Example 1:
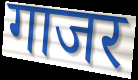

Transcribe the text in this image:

गाजर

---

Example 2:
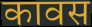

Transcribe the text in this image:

कावस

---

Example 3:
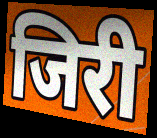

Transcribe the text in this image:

जिरी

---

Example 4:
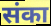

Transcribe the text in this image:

संका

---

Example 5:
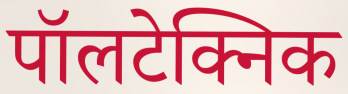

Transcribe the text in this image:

पॉलटेक्निक